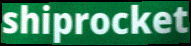
shiprocket